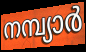
നമ്പ്യാർ